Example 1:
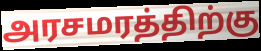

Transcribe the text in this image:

அரசமரத்திற்கு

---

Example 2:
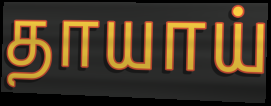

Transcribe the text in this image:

தாயாய்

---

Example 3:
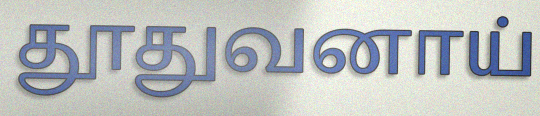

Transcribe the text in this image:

தூதுவனாய்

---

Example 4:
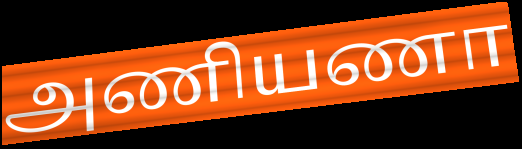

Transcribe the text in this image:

அணியணா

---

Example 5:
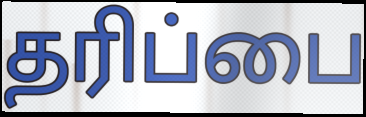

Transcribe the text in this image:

தரிப்பை